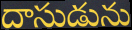
దాసుడును